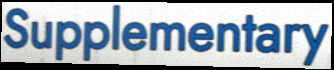
Supplementary